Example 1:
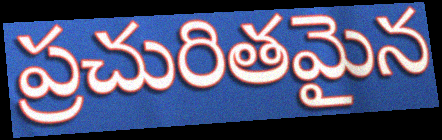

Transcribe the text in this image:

ప్రచురితమైన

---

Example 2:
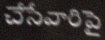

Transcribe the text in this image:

చేసేవారిపై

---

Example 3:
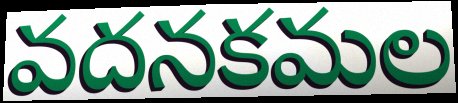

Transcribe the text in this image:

వదనకమల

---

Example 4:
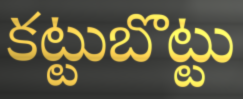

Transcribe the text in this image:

కట్టుబొట్టు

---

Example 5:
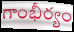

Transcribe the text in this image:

గాంభీర్యం